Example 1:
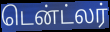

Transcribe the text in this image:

டென்ட்லர்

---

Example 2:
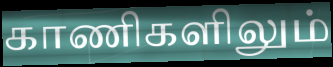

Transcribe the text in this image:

காணிகளிலும்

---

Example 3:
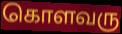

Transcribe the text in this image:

கொளவரு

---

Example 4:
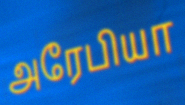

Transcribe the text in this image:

அரேபியா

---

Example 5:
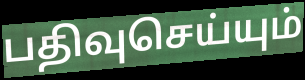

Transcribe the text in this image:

பதிவுசெய்யும்